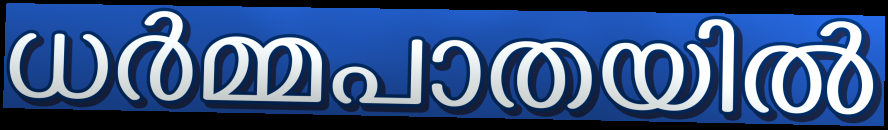
ധർമ്മപാതയിൽ